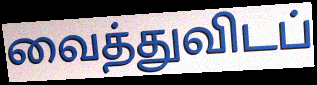
வைத்துவிடப்